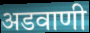
अडवाणी